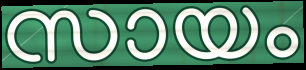
സായം